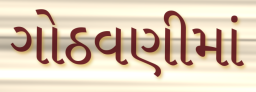
ગોઠવણીમાં